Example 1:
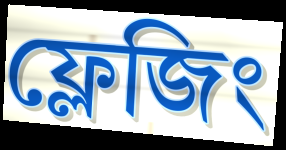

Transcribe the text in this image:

ফ্লেজিং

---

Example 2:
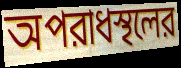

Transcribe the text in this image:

অপরাধস্থলের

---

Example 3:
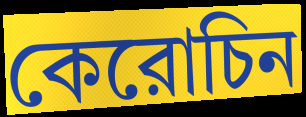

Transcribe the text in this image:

কেরোচিন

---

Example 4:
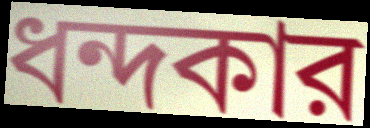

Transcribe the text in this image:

ধন্দকার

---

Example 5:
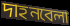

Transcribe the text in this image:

দাহনবেলা